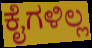
ಕೈಗಳಿಲ್ಲ